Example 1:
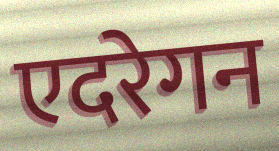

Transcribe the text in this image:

एदरेगन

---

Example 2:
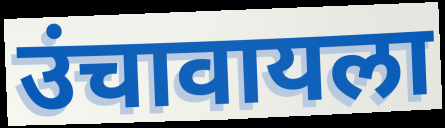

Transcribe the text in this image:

उंचावायला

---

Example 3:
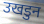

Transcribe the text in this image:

उखडुन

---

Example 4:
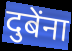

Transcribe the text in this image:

दुबेंना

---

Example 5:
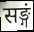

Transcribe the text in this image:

सङ्गं